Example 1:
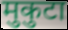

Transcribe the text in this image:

मुकुटा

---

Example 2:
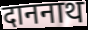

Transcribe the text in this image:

दाननाथ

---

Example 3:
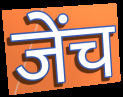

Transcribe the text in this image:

जेंच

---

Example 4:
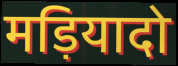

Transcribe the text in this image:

मड़ियादो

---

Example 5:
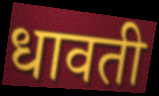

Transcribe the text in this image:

धावती